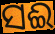
ସଈ